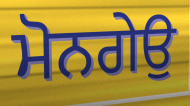
ਮੋਨਗੇਉ